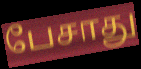
பேசாது